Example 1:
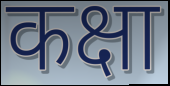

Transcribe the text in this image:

कक्षा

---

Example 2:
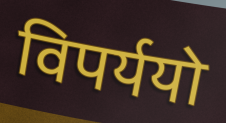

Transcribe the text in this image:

विपर्ययो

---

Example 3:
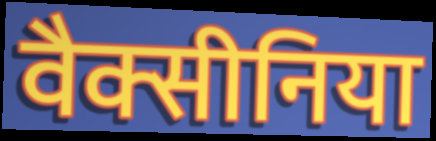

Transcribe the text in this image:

वैक्सीनिया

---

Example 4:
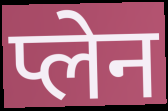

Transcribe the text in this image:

प्लेन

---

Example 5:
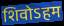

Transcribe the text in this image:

शिवोऽहम